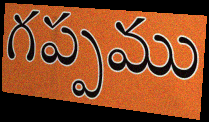
గప్పము